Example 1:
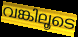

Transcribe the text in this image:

വങ്കിലൂടെ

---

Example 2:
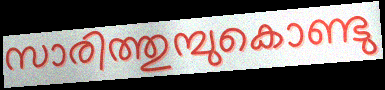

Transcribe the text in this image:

സാരിത്തുമ്പുകൊണ്ടു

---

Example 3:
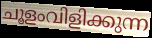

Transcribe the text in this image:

ചൂളംവിളിക്കുന്ന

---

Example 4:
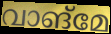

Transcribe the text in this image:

വാങ്മേ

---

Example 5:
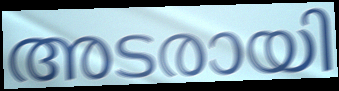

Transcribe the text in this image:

അടരായി